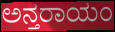
ಅನ್ತರಾಯಂ